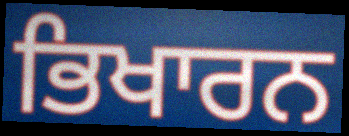
ਭਿਖਾਰਨ